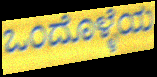
ಒಂದೊಳ್ಳೆಯ